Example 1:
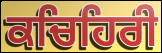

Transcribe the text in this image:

ਕਚਿਹਿਰੀ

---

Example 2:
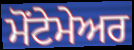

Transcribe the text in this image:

ਮੋਂਟੇਮੇਅਰ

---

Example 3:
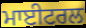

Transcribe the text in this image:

ਮਾਈਟਰਲ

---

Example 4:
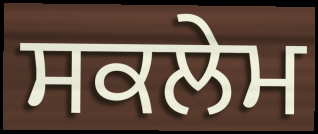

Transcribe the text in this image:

ਸਕਲੇਮ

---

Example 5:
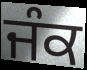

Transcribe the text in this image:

ਜੰਕ